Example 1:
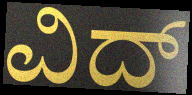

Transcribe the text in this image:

ವಿದ್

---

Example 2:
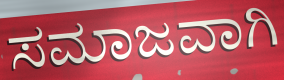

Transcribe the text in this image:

ಸಮಾಜವಾಗಿ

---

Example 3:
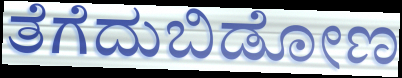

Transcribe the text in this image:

ತೆಗೆದುಬಿಡೋಣ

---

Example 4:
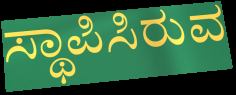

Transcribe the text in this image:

ಸ್ಥಾಪಿಸಿರುವ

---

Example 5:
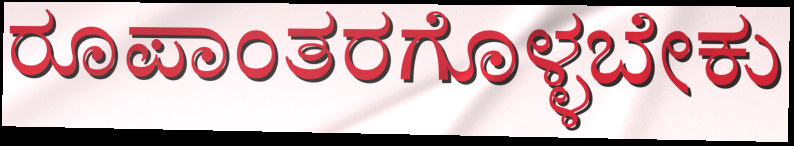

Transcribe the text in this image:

ರೂಪಾಂತರಗೊಳ್ಳಬೇಕು